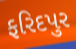
ફરિદપુર